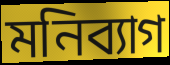
মনিব্যাগ